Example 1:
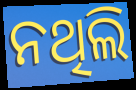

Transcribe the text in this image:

ନଥିଲି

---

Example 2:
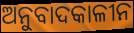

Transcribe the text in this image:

ଅନୁବାଦକାଳୀନ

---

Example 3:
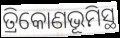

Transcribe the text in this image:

ତ୍ରିକୋଣଭୂମିସ୍ଥ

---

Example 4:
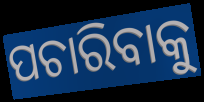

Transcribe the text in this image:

ପଚାରିବାକୁ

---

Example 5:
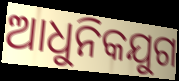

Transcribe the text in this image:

ଆଧୁନିକଯୁଗ